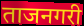
ताजनगरी